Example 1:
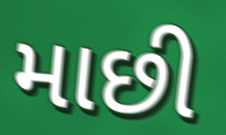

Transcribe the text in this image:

માછી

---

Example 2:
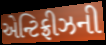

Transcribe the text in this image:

એન્ટિફ્રીઝની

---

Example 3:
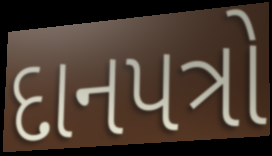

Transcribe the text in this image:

દાનપત્રો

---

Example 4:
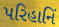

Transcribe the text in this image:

પરિહાનિં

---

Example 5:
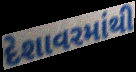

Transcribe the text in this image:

દેશાવરમાંથી